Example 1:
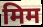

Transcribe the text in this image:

मिम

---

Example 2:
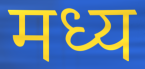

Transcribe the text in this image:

मध्य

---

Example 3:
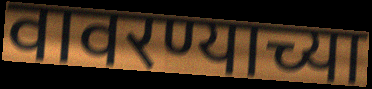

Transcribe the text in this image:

वावरण्याच्या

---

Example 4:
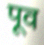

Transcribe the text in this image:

पूव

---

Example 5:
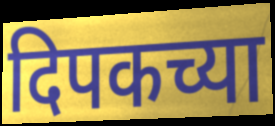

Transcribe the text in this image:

दिपकच्या